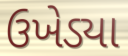
ઉખેડ્યા